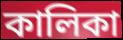
কালিকা